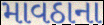
માવઠાના